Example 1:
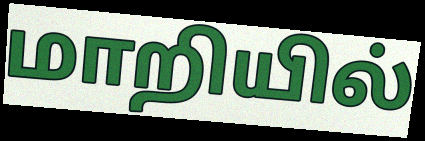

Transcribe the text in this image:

மாறியில்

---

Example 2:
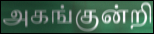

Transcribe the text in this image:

அகங்குன்றி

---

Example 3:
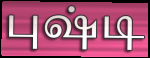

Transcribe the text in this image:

புஷ்டி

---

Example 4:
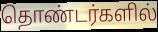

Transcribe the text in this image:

தொண்டர்களில்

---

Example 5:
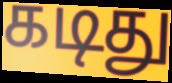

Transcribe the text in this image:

கடிது